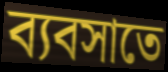
ব্যবসাতে